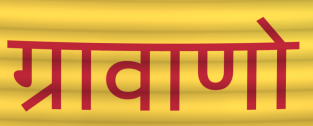
ग्रावाणो